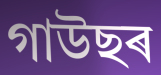
গাউছৰ